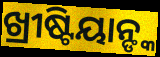
ଖ୍ରୀଷ୍ଟିୟାନ୍ଙ୍କ